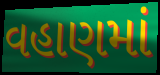
વહાણમાં